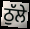
ਠੁੱਲੇ